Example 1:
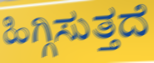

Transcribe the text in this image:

ಹಿಗ್ಗಿಸುತ್ತದೆ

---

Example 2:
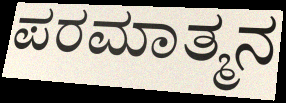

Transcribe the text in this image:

ಪರಮಾತ್ಮನ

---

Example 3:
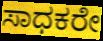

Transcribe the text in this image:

ಸಾಧಕರೇ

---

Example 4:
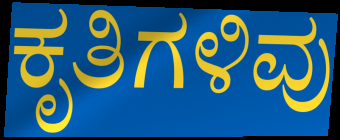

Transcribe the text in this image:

ಕೃತಿಗಳಿವು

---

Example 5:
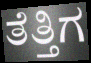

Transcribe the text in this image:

ತೆತ್ತಿಗ